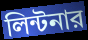
লিন্টনার